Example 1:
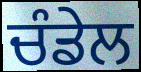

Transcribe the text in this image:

ਚੰਡੇਲ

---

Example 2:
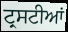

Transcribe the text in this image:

ਟ੍ਰਸਟੀਆਂ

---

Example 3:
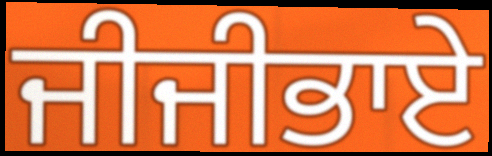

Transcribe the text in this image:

ਜੀਜੀਭਾਏ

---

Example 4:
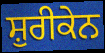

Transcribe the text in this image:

ਸ਼ੁਰੀਕੇਨ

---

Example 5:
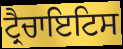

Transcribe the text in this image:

ਟ੍ਰੈਚਾਇਟਿਸ